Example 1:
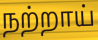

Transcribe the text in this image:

நற்றாய்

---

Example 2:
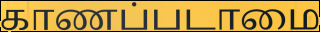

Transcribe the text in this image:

காணப்படாமை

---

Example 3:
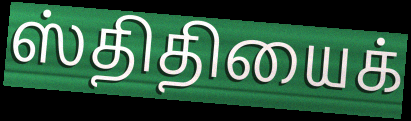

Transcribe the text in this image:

ஸ்திதியைக்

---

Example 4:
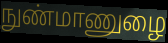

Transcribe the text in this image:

நுண்மாணுழை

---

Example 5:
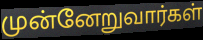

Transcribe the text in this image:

முன்னேறுவார்கள்